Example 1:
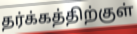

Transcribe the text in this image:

தர்க்கத்திற்குள்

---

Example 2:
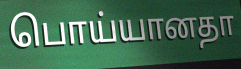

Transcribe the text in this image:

பொய்யானதா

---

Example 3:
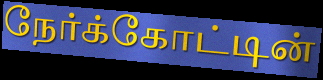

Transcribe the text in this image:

நேர்க்கோட்டின்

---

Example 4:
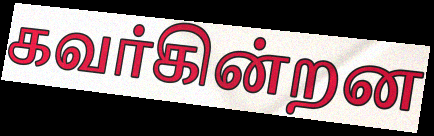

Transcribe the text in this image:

கவர்கின்றன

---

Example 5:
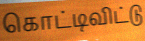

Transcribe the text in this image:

கொட்டிவிட்டு